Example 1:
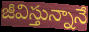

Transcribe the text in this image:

జీవిస్తున్నానే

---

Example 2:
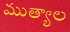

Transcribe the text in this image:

ముత్యాల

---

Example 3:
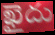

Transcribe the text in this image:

ఖైదు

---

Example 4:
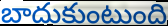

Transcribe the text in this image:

బాదుకుంటుంది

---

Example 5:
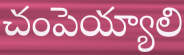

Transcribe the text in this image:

చంపెయ్యాలి